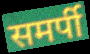
समर्पी